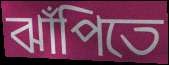
ঝাঁপিতে